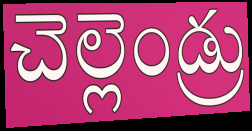
చెల్లెండ్రు